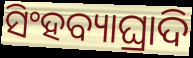
ସିଂହବ୍ୟାଘ୍ରାଦି